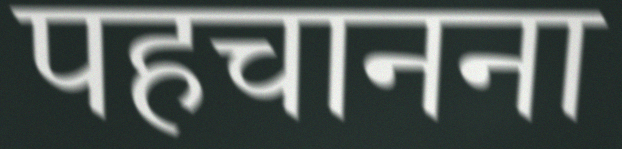
पहचानना